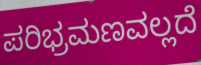
ಪರಿಭ್ರಮಣವಲ್ಲದೆ